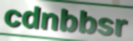
cdnbbsr